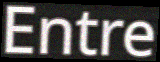
Entre